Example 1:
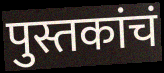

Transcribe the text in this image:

पुस्तकांचं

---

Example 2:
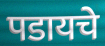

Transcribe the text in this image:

पडायचे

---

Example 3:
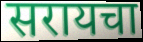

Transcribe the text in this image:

सरायचा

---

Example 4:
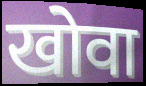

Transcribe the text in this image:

खोवा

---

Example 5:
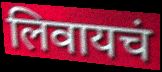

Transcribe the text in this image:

लिवायचं